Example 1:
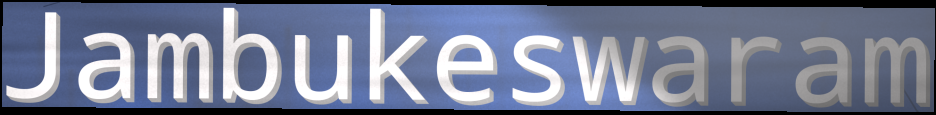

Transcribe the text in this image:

Jambukeswaram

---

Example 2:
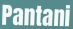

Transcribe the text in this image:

Pantani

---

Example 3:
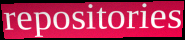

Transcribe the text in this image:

repositories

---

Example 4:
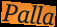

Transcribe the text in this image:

Palla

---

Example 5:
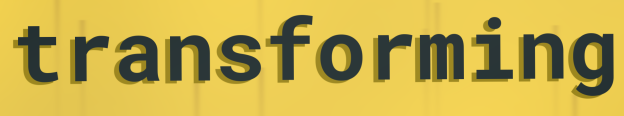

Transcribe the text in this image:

transforming